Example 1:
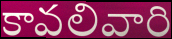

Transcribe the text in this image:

కావలివారి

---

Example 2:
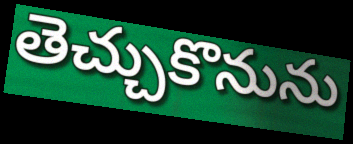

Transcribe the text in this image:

తెచ్చుకొనును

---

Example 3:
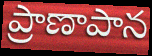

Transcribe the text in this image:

ప్రాణాపాన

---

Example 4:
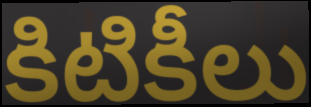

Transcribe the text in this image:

కిటికీలు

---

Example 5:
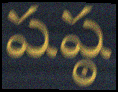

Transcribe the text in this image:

షష్ఠ